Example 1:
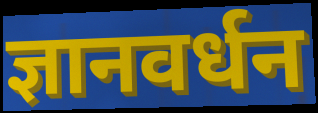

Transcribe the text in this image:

ज्ञानवर्धन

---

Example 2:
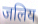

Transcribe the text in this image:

जलिय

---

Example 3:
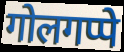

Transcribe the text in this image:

गोलगप्पे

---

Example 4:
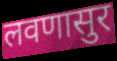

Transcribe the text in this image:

लवणासुर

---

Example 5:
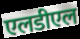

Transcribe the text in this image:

एलडीएल